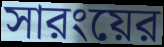
সারংয়ের